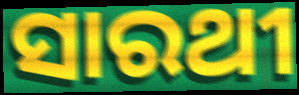
ସାରଥୀ